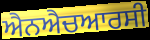
ਐਨਐਚਆਰਸੀ